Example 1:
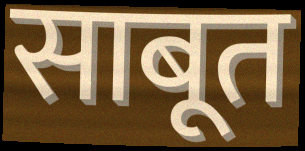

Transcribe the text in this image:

साबूत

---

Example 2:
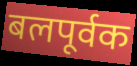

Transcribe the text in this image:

बलपूर्वक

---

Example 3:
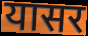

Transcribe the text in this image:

यासर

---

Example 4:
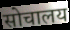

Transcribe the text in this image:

सोचालय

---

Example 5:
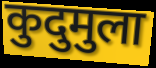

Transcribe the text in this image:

कुदुमुला